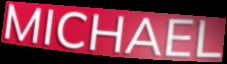
MICHAEL